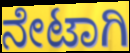
ನೇಟಾಗಿ